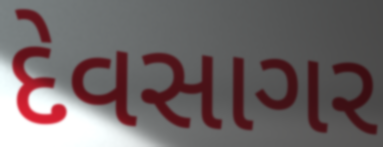
દેવસાગર